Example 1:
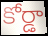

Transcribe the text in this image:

కోర్డా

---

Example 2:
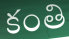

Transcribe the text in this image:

కంతి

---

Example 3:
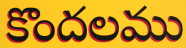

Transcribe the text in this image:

కొందలము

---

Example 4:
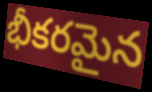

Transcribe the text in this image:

భీకరమైన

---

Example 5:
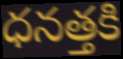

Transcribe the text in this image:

ధనత్తకి